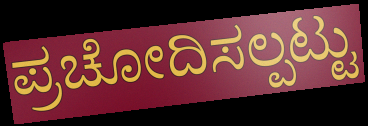
ಪ್ರಚೋದಿಸಲ್ಪಟ್ಟು